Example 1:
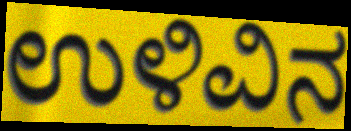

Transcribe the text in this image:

ಉಳಿವಿನ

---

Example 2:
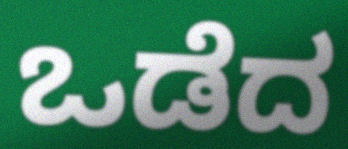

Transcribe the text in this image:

ಒಡೆದ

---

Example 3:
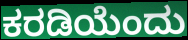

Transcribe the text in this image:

ಕರಡಿಯೆಂದು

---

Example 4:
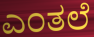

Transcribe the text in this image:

ಎಂತಲೆ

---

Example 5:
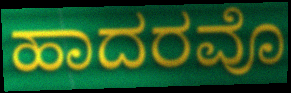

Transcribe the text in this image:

ಹಾದರವೊ